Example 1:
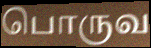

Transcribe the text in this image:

பொருவ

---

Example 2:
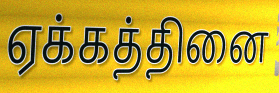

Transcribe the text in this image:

ஏக்கத்தினை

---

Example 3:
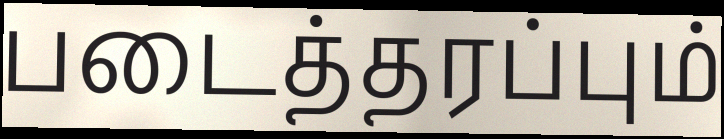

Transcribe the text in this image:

படைத்தரப்பும்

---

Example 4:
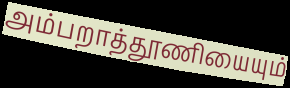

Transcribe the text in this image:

அம்பறாத்தூணியையும்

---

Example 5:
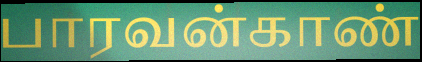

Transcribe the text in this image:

பாரவன்காண்